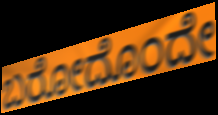
ಬರೋದೊಂದೇ